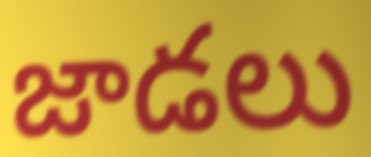
జాడలు